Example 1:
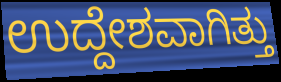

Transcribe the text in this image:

ಉದ್ದೇಶವಾಗಿತ್ತು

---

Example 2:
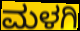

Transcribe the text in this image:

ಮಳಗಿ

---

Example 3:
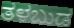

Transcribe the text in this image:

ತಳಬುಡ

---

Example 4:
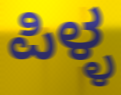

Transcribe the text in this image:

ಪಿಳ್ಳ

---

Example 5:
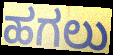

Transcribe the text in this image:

ಹಗಲು